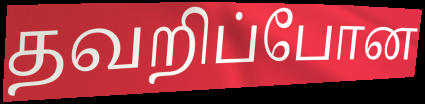
தவறிப்போன